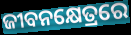
ଜୀବନକ୍ଷେତ୍ରରେ